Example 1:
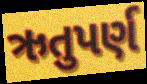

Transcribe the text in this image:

ઋતુપર્ણ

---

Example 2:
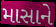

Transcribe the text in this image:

માસાને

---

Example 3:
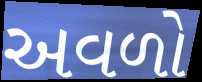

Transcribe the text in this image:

અવળો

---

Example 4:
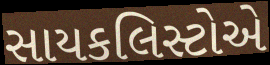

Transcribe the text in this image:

સાયકલિસ્ટોએ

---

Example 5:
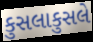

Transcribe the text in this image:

કુસલાકુસલે